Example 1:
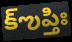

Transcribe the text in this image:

క్ఌప్తిః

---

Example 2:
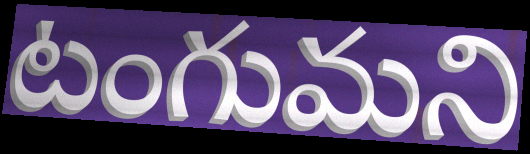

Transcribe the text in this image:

టంగుమని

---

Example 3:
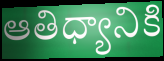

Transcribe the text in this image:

ఆతిధ్యానికి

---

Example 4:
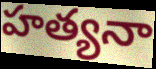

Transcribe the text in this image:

హత్యనా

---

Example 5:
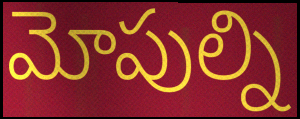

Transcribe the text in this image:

మోపుల్ని